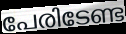
പേരിടേണ്ട